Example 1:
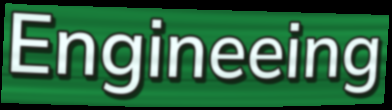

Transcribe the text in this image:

Engineeing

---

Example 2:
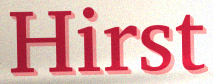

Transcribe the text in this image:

Hirst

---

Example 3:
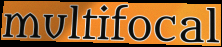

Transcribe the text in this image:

multifocal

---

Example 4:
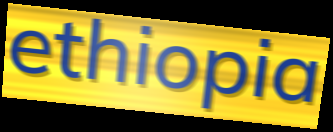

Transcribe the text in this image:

ethiopia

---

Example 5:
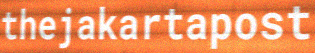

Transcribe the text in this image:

thejakartapost